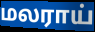
மலராய்